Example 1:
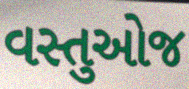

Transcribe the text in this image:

વસ્તુઓજ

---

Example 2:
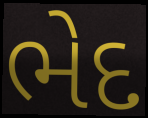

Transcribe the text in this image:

ભેદ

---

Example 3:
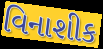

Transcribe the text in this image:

વિનાશીક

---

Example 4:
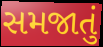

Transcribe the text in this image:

સમજાતું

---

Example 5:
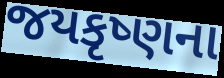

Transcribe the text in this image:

જયકૃષ્ણના